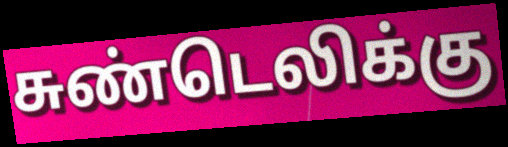
சுண்டெலிக்கு